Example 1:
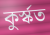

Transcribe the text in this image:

কুৰ্স্কত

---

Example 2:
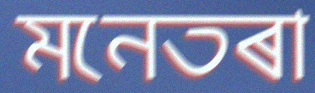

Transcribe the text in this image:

মনেতৰা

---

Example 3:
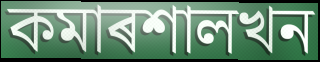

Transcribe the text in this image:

কমাৰশালখন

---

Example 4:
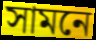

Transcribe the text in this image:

সামনে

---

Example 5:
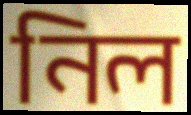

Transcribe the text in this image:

নিল